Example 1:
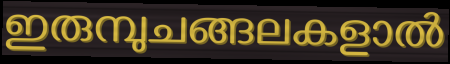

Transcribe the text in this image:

ഇരുമ്പുചങ്ങലകളാൽ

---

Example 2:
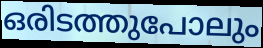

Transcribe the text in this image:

ഒരിടത്തുപോലും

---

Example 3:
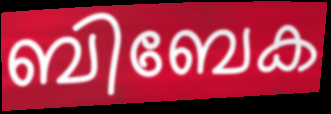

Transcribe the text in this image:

ബിബേക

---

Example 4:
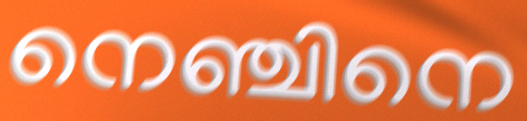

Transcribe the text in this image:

നെഞ്ചിനെ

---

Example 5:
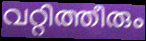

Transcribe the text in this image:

വറ്റിത്തീരും